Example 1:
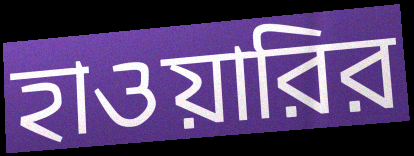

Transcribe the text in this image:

হাওয়ারির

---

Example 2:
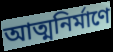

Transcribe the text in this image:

আত্মনির্মাণে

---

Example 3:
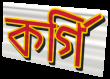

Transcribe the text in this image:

কর্গি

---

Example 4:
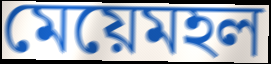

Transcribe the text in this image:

মেয়েমহল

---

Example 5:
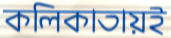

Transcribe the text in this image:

কলিকাতায়ই